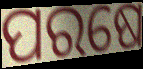
ପରଷେ